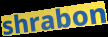
shrabon